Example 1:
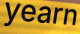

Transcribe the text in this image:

yearn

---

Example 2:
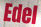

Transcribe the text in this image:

Edel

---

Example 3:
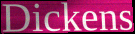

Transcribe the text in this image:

Dickens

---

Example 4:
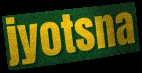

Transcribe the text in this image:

jyotsna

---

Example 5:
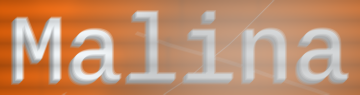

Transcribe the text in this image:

Malina